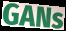
GANs